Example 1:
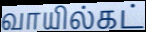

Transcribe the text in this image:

வாயில்கட்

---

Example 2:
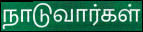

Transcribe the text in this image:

நாடுவார்கள்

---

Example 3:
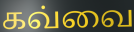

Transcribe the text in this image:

கவ்வை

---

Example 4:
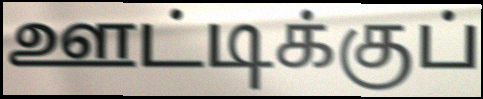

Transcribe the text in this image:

ஊட்டிக்குப்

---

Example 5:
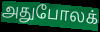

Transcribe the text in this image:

அதுபோலக்